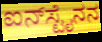
ಐನ್‌ಸ್ಟೈನನ